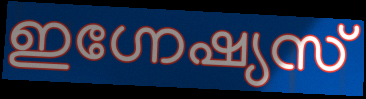
ഇഗ്നേഷ്യസ്